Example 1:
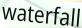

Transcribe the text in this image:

waterfall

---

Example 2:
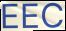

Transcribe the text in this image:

EEC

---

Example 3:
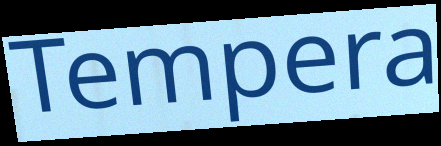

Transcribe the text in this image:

Tempera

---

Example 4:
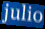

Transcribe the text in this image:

julio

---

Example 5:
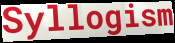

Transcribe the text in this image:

Syllogism